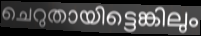
ചെറുതായിട്ടെങ്കിലും